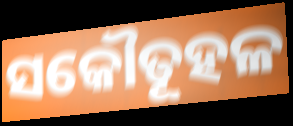
ସକୌତୂହଳ